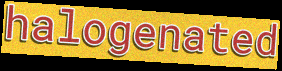
halogenated